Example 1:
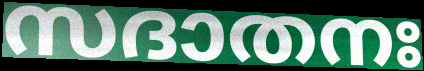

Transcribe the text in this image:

സദാതനഃ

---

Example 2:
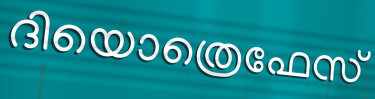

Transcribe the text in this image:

ദിയൊത്രെഫേസ്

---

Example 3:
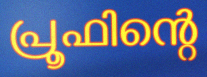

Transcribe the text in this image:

പ്രൂഫിന്റെ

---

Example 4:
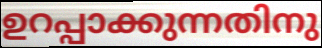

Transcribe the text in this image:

ഉറപ്പാക്കുന്നതിനു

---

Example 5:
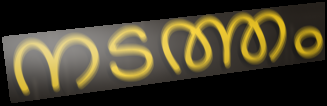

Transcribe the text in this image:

നടത്തം